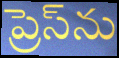
ప్రెస్‌ను